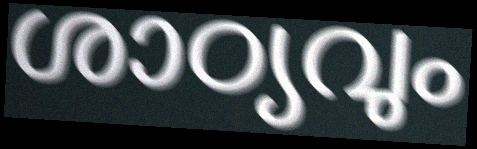
ശാഠ്യവും